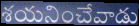
శయనించేవాడు